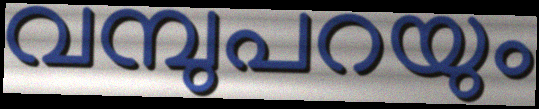
വമ്പുപറയും